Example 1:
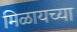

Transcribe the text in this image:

मिळायच्या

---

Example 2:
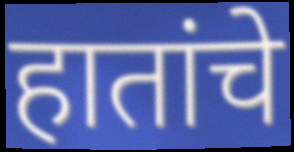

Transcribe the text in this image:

हातांचे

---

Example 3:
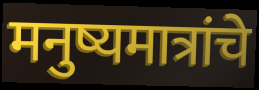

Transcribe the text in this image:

मनुष्यमात्रांचे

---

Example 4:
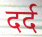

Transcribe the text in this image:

दर्द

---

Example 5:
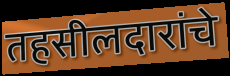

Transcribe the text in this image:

तहसीलदारांचे